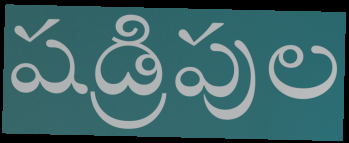
షడ్రిపుల